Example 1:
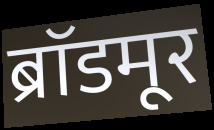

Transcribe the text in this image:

ब्रॉडमूर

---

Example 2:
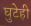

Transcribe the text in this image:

घुटेही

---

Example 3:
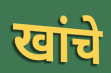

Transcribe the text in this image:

खांचे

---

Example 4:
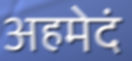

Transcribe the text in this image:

अहमेदं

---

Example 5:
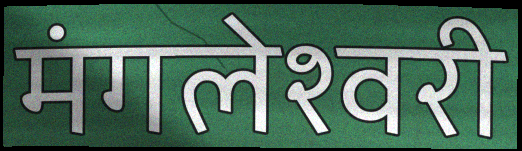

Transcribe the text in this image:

मंगलेश्वरी